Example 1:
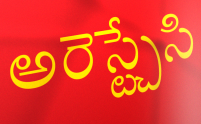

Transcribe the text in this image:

అరెస్ట్చేసి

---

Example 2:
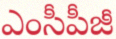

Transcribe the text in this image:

ఎంసీపీజీ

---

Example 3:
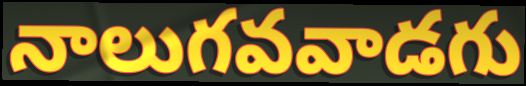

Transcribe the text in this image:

నాలుగవవాడగు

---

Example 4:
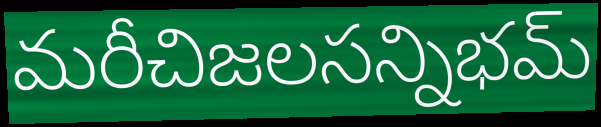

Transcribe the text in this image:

మరీచిజలసన్నిభమ్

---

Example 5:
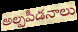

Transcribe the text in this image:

అల్పపీడనాలు